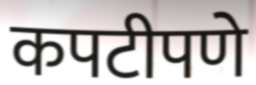
कपटीपणे